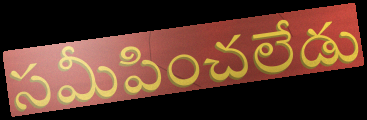
సమీపించలేడు